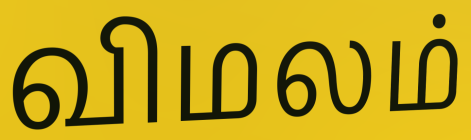
விமலம்